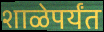
शाळेपर्यंत